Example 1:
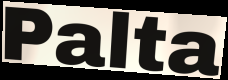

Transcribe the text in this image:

Palta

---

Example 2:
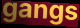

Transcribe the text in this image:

gangs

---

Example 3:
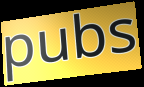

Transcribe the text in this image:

pubs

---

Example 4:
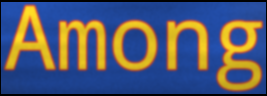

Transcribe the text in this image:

Among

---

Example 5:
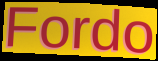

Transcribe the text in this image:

Fordo